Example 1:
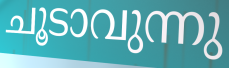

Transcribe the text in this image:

ചൂടാവുന്നു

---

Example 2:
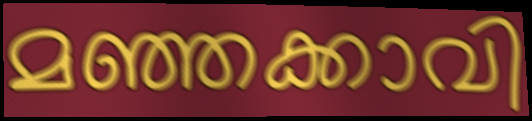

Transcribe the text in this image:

മഞ്ഞക്കാവി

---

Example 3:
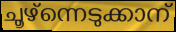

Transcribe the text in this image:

ചൂഴ്ന്നെടുക്കാന്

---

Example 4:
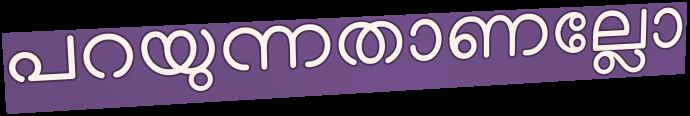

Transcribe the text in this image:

പറയുന്നതാണല്ലോ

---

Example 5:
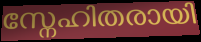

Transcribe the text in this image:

സ്നേഹിതരായി